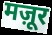
मज़ूर